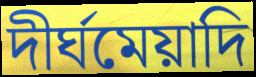
দীর্ঘমেয়াদি